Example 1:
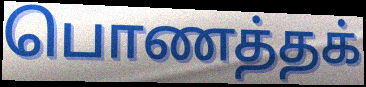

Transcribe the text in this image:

பொணத்தக்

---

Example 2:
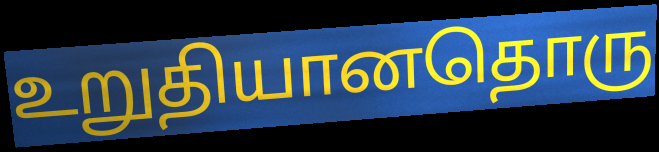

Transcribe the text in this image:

உறுதியானதொரு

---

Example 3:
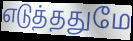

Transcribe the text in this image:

எடுத்ததுமே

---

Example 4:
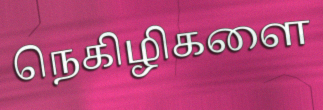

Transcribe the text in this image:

நெகிழிகளை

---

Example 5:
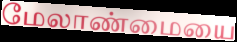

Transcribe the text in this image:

மேலாண்மையை